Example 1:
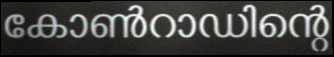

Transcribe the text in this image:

കോൺറാഡിന്റെ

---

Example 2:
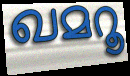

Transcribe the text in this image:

ഖമറൂ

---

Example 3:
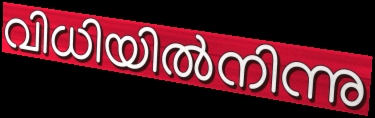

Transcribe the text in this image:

വിധിയിൽനിന്നു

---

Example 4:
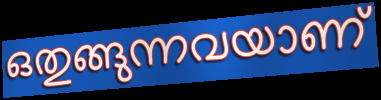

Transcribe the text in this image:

ഒതുങ്ങുന്നവയാണ്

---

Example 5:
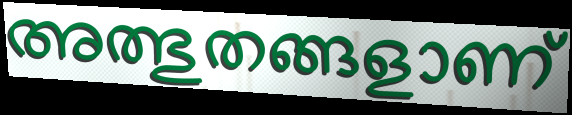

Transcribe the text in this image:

അത്ഭുതങ്ങളാണ്